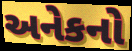
અનેકનો